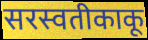
सरस्वतीकाकू